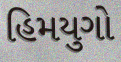
હિમયુગો